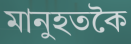
মানুহতকৈ